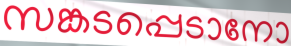
സങ്കടപ്പെടാനോ